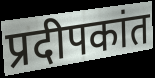
प्रदीपकांत